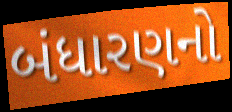
બંધારણનો